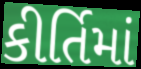
કીર્તિમાં